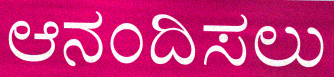
ಆನಂದಿಸಲು